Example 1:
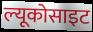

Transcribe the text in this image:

ल्यूकोसाइट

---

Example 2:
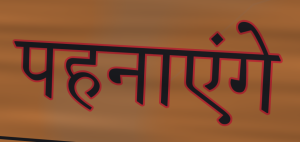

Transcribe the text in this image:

पहनाएंगे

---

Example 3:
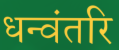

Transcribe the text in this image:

धन्वंतरि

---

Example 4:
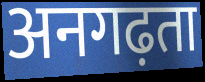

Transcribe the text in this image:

अनगढ़ता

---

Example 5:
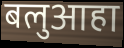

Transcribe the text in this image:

बलुआहा